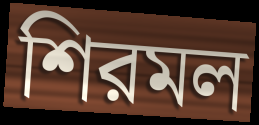
শিরমল